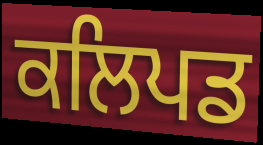
ਕਲਿਪਡ